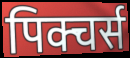
पिक्चर्स